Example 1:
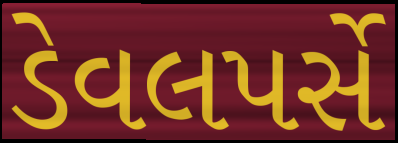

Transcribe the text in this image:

ડેવલપર્સે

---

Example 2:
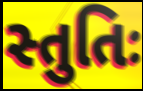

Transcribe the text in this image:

સ્તુતિઃ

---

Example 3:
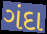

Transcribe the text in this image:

ગંદા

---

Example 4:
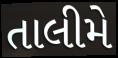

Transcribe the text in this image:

તાલીમે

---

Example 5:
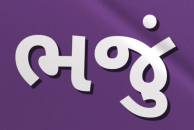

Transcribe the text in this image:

ભજું